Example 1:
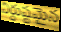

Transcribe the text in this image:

నిర్దుష్టమైన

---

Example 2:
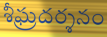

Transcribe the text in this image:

శీఘ్రదర్శనం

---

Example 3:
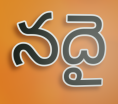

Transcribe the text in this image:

నదై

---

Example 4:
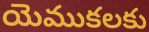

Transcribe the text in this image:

యెముకలకు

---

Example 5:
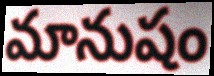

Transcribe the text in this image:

మానుషం